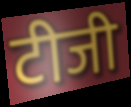
टीजी